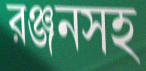
রঞ্জনসহ